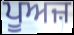
ਪੂਅਜ਼